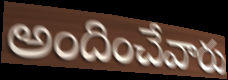
అందించేవారు